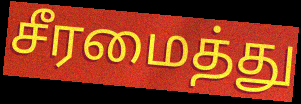
சீரமைத்து